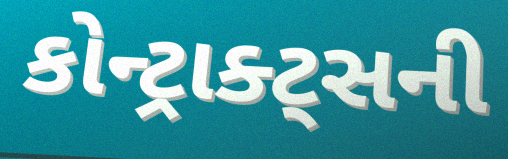
કોન્ટ્રાક્ટ્સની